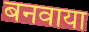
बनवाया